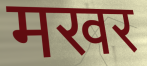
मखर